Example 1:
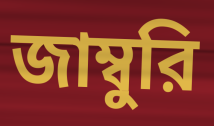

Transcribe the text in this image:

জাম্বুরি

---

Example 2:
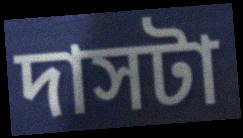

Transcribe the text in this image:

দাসটা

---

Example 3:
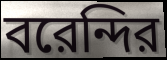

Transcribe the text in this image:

বরেন্দির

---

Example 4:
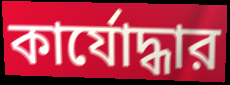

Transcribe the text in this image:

কার্যোদ্ধার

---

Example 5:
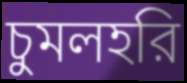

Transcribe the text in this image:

চুমলহরি